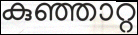
കുഞ്ഞാറ്റ